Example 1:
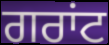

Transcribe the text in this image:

ਗਰਾਂਟ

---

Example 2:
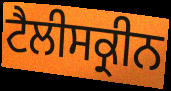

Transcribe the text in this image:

ਟੈਲੀਸਕ੍ਰੀਨ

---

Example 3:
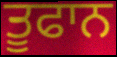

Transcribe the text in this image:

ਤੂਫਾਨ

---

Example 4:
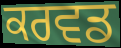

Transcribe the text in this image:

ਕਰਵਡ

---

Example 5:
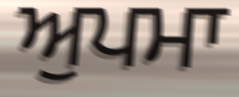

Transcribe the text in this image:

ਅੁਪਮਾ